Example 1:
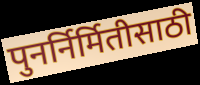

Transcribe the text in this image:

पुनर्निर्मितीसाठी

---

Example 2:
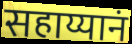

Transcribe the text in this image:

सहाय्यानं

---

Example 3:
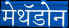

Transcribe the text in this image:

मेथॅडोन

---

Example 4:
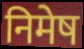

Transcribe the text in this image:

निमेष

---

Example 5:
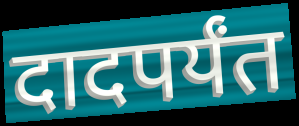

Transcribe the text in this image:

दादपर्यंत